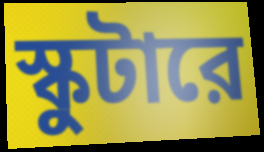
স্কুটারে